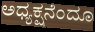
ಅಧ್ಯಕ್ಷನೆಂದೂ